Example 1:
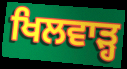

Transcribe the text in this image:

ਖਿਲਵਾੜ੍ਹ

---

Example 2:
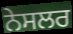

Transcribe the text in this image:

ਨੇਸਲਰ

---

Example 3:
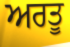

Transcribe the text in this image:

ਅਰਤੂ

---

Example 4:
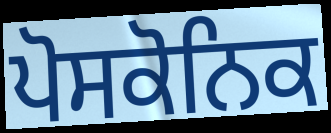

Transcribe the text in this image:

ਪੋਸਕੋਨਿਕ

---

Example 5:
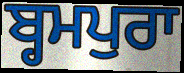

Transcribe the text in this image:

ਬ੍ਹਮਪੁਰਾ